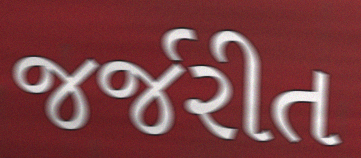
જર્જરીત